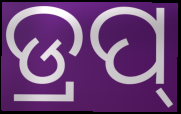
ଡ୍ରପ୍